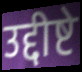
उद्दीष्टे